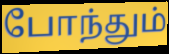
போந்தும்